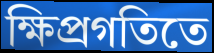
ক্ষিপ্রগতিতে